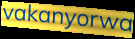
vakanyorwa